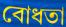
বোধতা